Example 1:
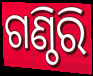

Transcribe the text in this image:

ଗଣ୍ଠିରି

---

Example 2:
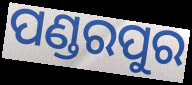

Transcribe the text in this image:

ପଣ୍ଡରପୁର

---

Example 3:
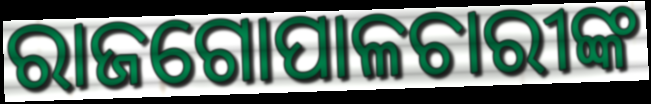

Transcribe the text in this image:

ରାଜଗୋପାଳଚାରୀଙ୍କ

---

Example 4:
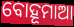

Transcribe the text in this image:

ବୋହୂମାଆ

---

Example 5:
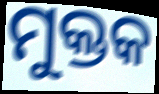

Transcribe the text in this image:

ମୁକ୍ତକ